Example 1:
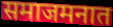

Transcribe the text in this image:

समाजमनात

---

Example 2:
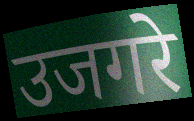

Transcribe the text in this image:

उजगरे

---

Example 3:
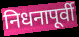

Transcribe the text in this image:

निधनापूर्वी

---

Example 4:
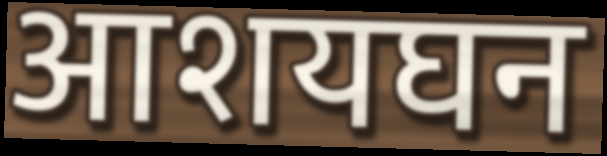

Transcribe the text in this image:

आशयघन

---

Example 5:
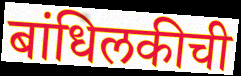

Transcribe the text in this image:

बांधिलकीची